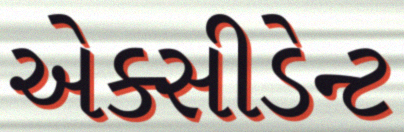
એક્સીડેન્ટ